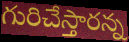
గురిచేస్తారన్న